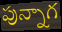
పున్నాగ